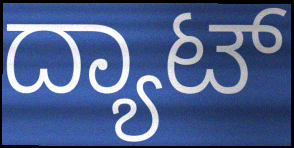
ದ್ಯಾಟ್